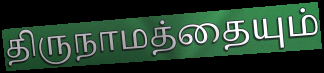
திருநாமத்தையும்